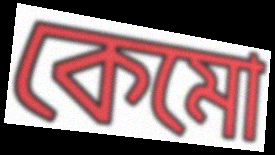
কেমো